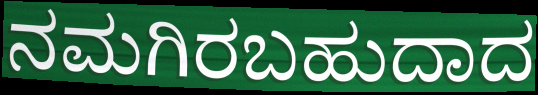
ನಮಗಿರಬಹುದಾದ